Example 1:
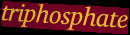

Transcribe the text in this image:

triphosphate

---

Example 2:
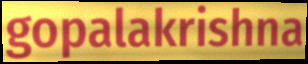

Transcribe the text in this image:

gopalakrishna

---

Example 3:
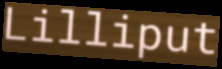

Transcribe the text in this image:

Lilliput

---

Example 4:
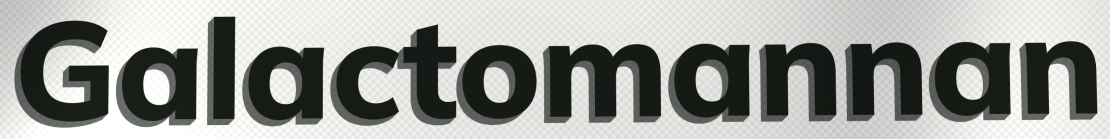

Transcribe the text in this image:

Galactomannan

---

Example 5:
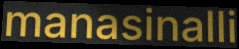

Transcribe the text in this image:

manasinalli